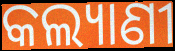
କଲ୍ୟାଣୀ